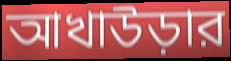
আখাউড়ার